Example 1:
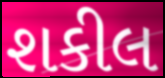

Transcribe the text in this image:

શકીલ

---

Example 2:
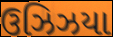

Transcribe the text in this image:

ઉઝિઝયા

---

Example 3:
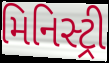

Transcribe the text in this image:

મિનિસ્ટ્રી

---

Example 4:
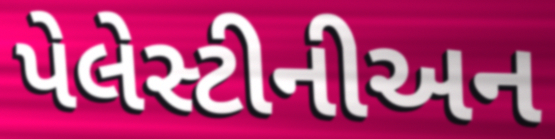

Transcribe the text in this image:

પેલેસ્ટીનીઅન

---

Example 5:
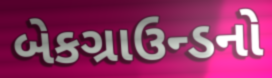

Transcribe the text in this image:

બેકગ્રાઉન્ડનો